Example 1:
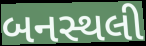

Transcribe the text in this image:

બનસ્થલી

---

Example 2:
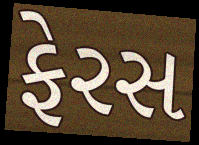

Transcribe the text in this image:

ફેરસ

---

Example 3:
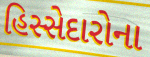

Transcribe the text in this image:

હિસ્સેદારોના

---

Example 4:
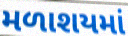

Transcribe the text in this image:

મળાશયમાં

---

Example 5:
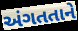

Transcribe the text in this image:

અંગતતાને